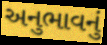
અનુભાવનું